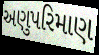
અણુપરિમાણ